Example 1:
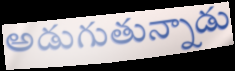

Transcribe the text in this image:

అడుగుతున్నాడు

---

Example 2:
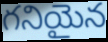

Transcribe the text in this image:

గనియైన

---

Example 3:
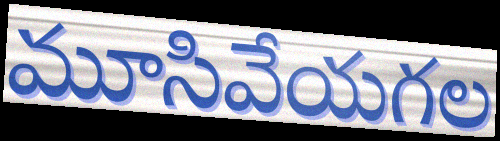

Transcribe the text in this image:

మూసివేయగల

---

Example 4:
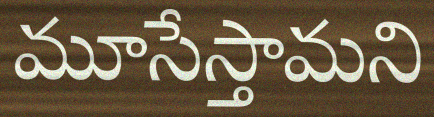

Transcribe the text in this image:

మూసేస్తామని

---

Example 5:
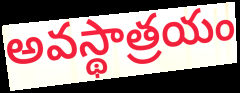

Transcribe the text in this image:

అవస్థాత్రయం